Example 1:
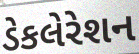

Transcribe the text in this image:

ડેકલેરેશન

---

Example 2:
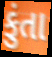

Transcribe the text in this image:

કુંતા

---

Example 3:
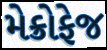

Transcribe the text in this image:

મેક્રોફેજ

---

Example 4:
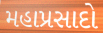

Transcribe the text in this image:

મહાપ્રસાદો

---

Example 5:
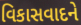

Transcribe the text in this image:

વિકાસવાદને